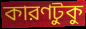
কারণটুকু